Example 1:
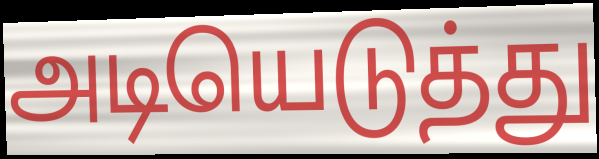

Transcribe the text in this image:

அடியெடுத்து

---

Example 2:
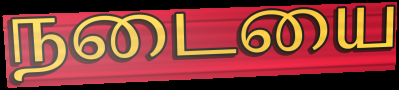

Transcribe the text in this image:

நடையை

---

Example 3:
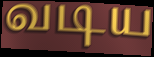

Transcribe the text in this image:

வடிய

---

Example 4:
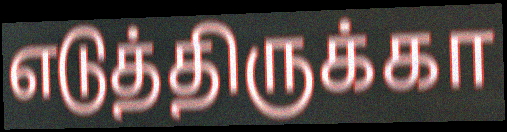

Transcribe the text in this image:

எடுத்திருக்கா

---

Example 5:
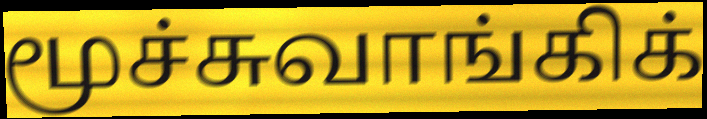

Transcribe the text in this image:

மூச்சுவாங்கிக்